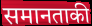
समानताकी